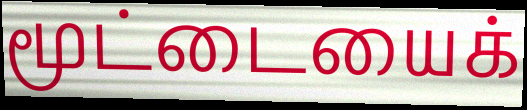
மூட்டையைக்